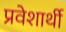
प्रवेशार्थी